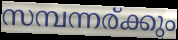
സമ്പന്നര്ക്കും